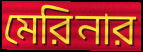
মেরিনার